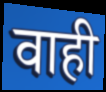
वाही